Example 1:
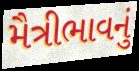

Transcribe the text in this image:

મૈત્રીભાવનું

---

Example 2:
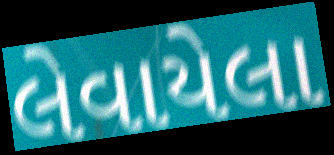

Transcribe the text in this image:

લેવાયેલા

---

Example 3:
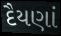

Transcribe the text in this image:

દૈયણાં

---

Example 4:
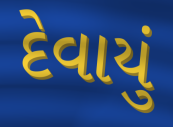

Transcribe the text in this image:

દેવાયું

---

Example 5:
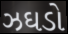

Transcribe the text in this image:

ઝઘડો